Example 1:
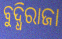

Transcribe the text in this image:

ବୁଦ୍ଧିରାଜା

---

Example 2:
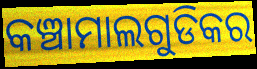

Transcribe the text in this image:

କଞ୍ଚାମାଲଗୁଡିକର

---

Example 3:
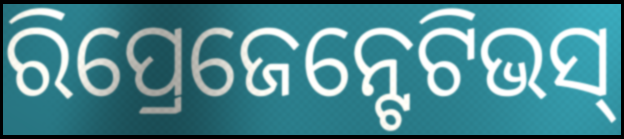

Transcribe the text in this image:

ରିପ୍ରେଜେନ୍ଟେଟିଭସ୍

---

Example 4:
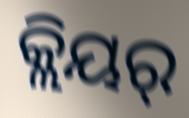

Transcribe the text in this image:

କ୍ଲିୟର୍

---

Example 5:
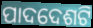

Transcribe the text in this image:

ପାଦଦେଶଟି